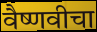
वैष्णवीचा